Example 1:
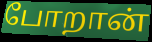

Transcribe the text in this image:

போறான்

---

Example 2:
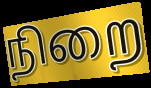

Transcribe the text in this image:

நிறை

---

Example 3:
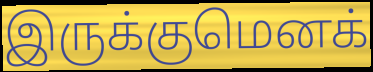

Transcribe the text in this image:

இருக்குமெனக்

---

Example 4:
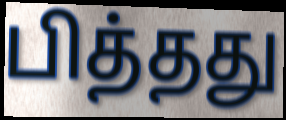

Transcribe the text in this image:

பித்தது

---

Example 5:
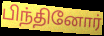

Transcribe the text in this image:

பிந்தினோர்